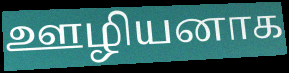
ஊழியனாக